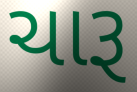
ચારૂ